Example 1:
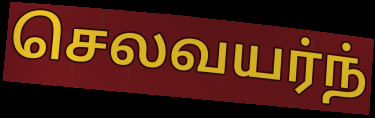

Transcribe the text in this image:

செலவயர்ந்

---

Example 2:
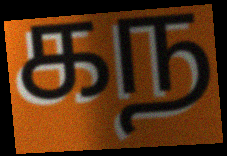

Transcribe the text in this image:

கந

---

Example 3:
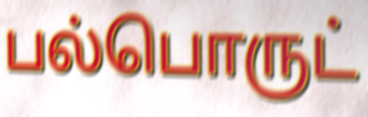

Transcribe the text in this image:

பல்பொருட்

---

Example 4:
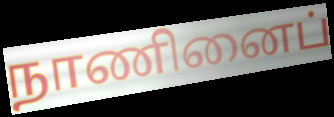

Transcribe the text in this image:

நாணினைப்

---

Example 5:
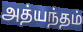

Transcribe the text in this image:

அத்யந்தம்